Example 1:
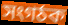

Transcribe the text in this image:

সংগঠক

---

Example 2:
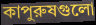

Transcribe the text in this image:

কাপুরুষগুলো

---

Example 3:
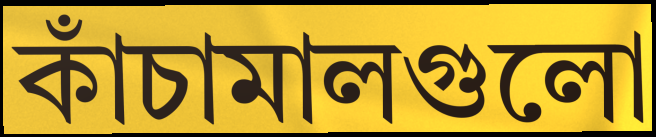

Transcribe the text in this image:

কাঁচামালগুলো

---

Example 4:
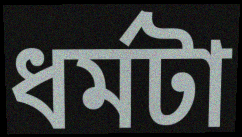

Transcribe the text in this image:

ধর্মটা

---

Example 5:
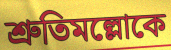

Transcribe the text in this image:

শ্রুতিমল্লোকে